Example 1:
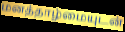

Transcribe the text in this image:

மனத்தாழ்மையுடன்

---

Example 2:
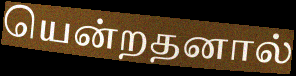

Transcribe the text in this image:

யென்றதனால்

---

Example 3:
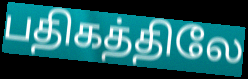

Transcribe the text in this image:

பதிகத்திலே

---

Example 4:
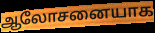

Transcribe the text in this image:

ஆலோசனையாக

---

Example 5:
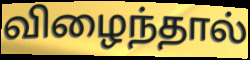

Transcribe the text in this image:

விழைந்தால்